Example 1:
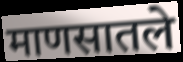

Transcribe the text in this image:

माणसातले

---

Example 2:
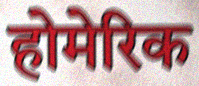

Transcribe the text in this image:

होमेरिक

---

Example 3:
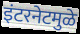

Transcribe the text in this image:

इंटरनेटमुळे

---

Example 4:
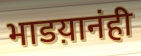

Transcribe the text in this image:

भाडय़ानंही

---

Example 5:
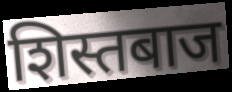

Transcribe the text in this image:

शिस्तबाज